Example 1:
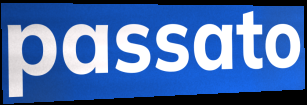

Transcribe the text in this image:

passato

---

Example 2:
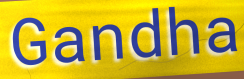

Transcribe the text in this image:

Gandha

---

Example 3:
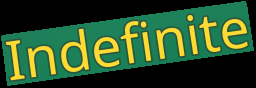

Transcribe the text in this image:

Indefinite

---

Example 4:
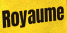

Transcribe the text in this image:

Royaume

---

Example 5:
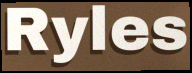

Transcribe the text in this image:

Ryles